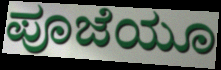
ಪೂಜೆಯೂ